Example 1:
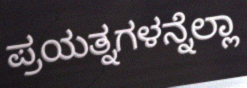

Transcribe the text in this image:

ಪ್ರಯತ್ನಗಳನ್ನೆಲ್ಲಾ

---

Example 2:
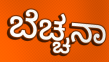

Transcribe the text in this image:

ಬೆಚ್ಚನಾ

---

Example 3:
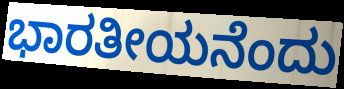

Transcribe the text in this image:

ಭಾರತೀಯನೆಂದು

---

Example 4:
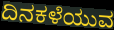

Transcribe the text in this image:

ದಿನಕಳೆಯುವ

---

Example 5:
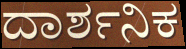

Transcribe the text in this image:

ದಾರ್ಶನಿಕ